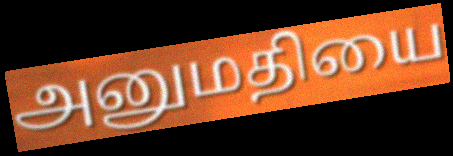
அனுமதியை